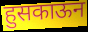
हुसकाऊन